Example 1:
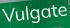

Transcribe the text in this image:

Vulgate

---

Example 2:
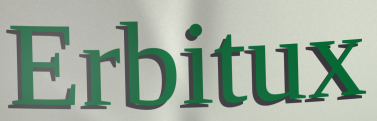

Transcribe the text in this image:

Erbitux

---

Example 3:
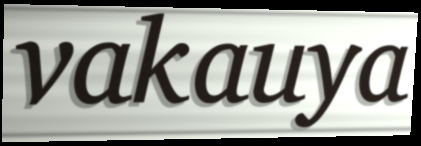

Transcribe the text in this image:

vakauya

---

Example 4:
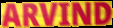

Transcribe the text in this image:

ARVIND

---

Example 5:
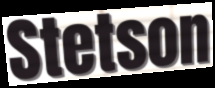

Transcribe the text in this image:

Stetson